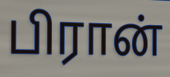
பிரான்